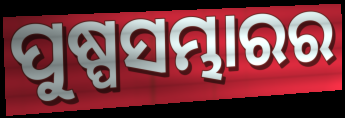
ପୁଷ୍ପସମ୍ଭାରର